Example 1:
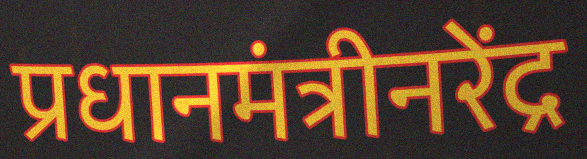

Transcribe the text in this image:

प्रधानमंत्रीनरेंद्र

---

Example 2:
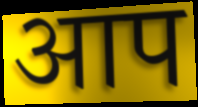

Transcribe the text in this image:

आप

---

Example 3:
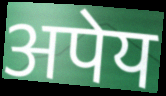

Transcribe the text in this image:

अपेय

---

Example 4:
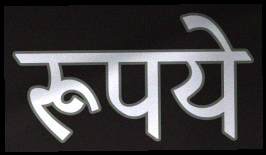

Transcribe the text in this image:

रूपये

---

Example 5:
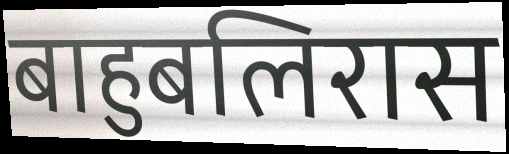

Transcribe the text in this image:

बाहुबलिरास